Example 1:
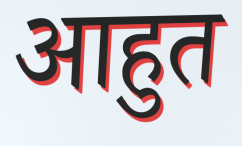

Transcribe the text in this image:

आहुत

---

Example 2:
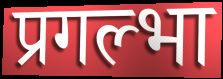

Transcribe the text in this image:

प्रगल्भा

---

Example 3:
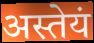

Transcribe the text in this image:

अस्तेयं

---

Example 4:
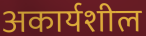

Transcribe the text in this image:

अकार्यशील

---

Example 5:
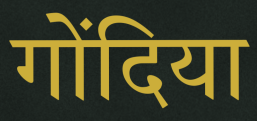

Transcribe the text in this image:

गोंदिया